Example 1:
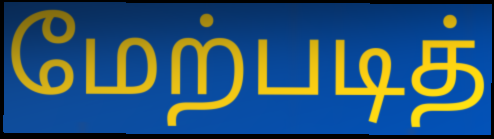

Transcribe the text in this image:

மேற்படித்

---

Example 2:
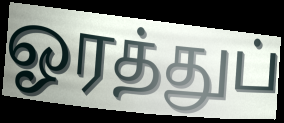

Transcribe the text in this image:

ஓரத்துப்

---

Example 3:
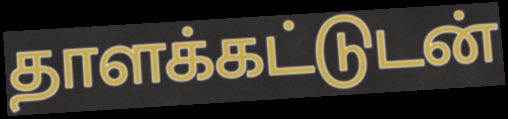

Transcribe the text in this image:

தாளக்கட்டுடன்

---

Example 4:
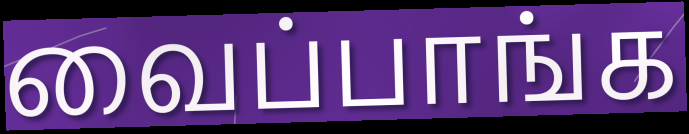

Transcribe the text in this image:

வைப்பாங்க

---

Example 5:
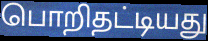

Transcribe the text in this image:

பொறிதட்டியது